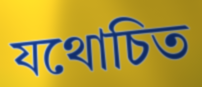
যথোচিত